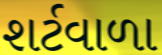
શર્ટવાળા